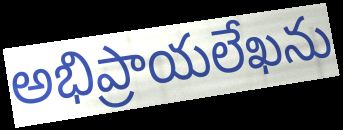
అభిప్రాయలేఖను